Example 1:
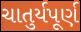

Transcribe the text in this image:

ચાતુર્યપૂર્ણ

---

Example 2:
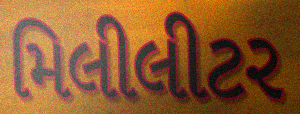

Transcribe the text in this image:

મિલીલીટર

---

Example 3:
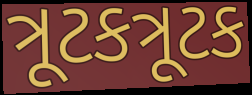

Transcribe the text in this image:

ત્રૂટકત્રૂટક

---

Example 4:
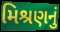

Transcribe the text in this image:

મિશ્રણનું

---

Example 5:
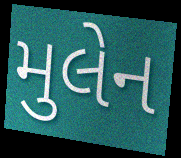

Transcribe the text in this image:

મુલેન